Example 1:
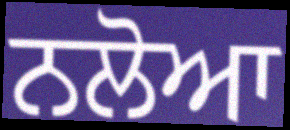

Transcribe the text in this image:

ਨਲੋਆ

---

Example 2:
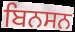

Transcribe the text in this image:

ਬਿਨਸਨ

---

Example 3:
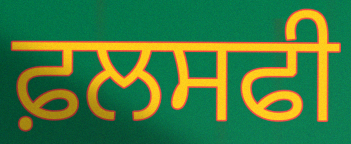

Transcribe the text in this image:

ਫ਼ਲਸਫੀ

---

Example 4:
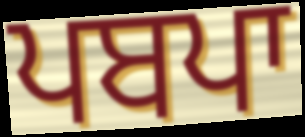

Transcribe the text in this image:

ਪਬਪਾ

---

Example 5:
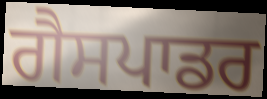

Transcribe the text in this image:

ਗੈਸਪਾਡਰ